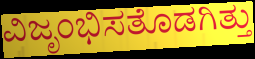
ವಿಜೃಂಭಿಸತೊಡಗಿತ್ತು